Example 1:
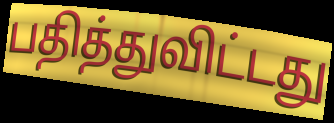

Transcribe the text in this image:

பதித்துவிட்டது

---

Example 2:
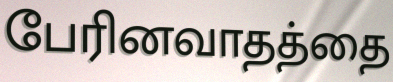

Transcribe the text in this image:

பேரினவாதத்தை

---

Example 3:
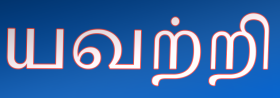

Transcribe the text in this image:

யவற்றி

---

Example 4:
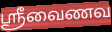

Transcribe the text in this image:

ஸ்ரீவைணவ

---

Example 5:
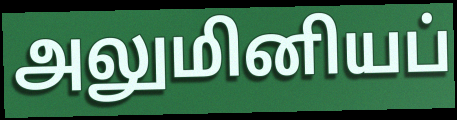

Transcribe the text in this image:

அலுமினியப்